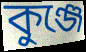
কুঞ্জে